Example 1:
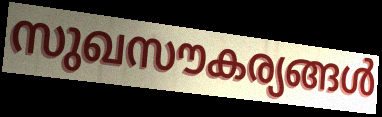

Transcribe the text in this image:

സുഖസൗകര്യങ്ങൾ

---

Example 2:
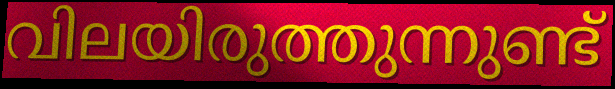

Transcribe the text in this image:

വിലയിരുത്തുന്നുണ്ട്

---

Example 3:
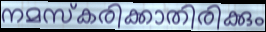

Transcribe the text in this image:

നമസ്കരിക്കാതിരിക്കും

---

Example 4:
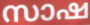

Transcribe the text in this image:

സാഷ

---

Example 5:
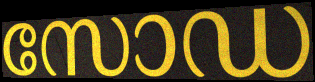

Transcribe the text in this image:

സോഡ